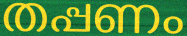
തപ്പണം